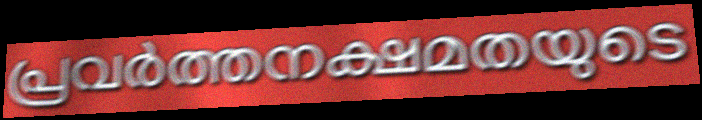
പ്രവർത്തനക്ഷമതയുടെ